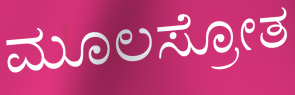
ಮೂಲಸ್ರೋತ